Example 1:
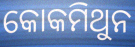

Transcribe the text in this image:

କୋକମିଥୁନ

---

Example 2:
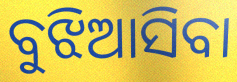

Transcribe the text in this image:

ବୁଝିଆସିବା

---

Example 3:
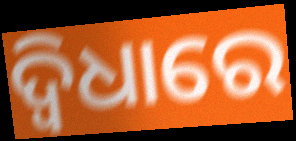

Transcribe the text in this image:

ଦ୍ୱିଧାରେ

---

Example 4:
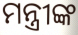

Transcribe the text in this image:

ମନ୍ତ୍ରୀଙ୍କ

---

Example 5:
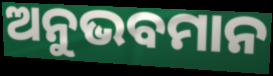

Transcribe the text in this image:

ଅନୁଭବମାନ